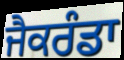
ਜੈਕਰੰਡਾ